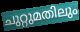
ചുറ്റുമതിലും